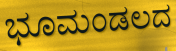
ಭೂಮಂಡಲದ